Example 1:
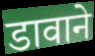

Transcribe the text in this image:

डावाने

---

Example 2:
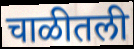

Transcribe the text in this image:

चाळीतली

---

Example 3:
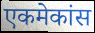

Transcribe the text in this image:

एकमेकांस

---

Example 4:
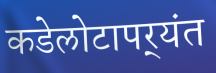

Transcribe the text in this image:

कडेलोटापर्यंत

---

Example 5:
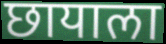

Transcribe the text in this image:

छायाला